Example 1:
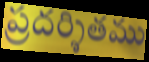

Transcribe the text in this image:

ప్రదర్శితము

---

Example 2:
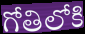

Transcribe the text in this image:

గోతిలోకి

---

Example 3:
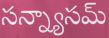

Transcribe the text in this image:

సన్న్యాసమ్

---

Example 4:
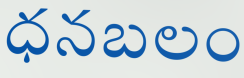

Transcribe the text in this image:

ధనబలం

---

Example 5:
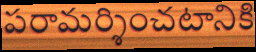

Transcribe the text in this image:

పరామర్శించటానికి